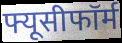
फ्यूसीफॉर्म